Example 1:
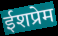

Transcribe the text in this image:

ईशप्रेम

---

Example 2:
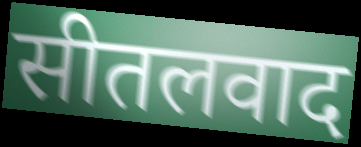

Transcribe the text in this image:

सीतलवाद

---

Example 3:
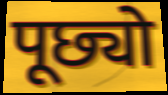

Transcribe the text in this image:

पूछ्यो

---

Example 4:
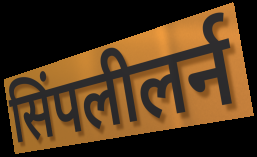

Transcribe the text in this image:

सिंपलीलर्न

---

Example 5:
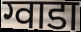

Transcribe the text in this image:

ग्वाडा